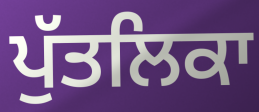
ਪੁੱਤਲਿਕਾ